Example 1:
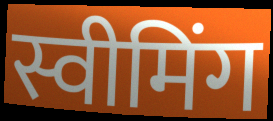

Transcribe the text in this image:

स्‍वीमिंग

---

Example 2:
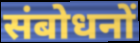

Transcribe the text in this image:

संबोधनों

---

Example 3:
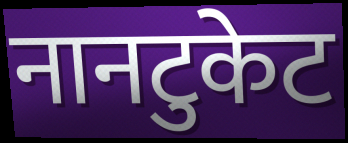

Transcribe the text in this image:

नानटुकेट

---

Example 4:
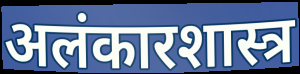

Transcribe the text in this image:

अलंकारशास्त्र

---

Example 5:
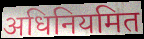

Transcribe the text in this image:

अधिनियमित